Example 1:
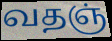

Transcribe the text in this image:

வதஞ்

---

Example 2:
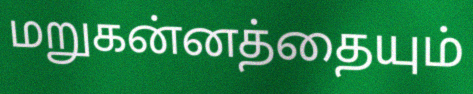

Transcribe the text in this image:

மறுகன்னத்தையும்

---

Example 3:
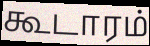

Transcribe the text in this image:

கூடாரம்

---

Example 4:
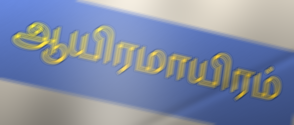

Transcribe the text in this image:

ஆயிரமாயிரம்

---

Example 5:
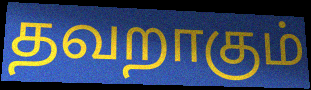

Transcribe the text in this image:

தவறாகும்